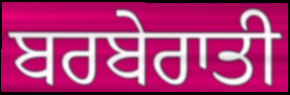
ਬਰਬੇਰਾਤੀ